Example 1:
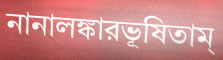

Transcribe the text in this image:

নানালঙ্কারভূষিতাম্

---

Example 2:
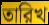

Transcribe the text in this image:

তারিখ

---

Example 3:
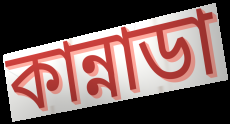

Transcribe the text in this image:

কান্নাডা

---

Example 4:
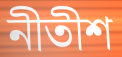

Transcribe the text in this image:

নীতীশ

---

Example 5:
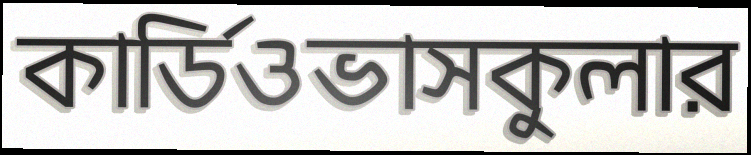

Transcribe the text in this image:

কার্ডিওভাসকুলার